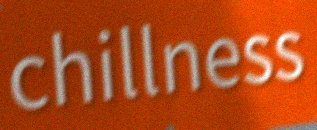
chillness